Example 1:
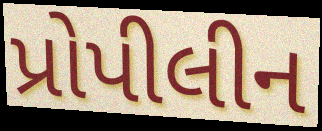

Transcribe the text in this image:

પ્રોપીલીન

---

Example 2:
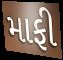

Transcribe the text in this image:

માફી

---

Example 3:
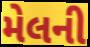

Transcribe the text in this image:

મેલની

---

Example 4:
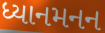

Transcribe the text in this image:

ધ્યાનમનન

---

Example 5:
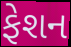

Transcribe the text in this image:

ફેશન